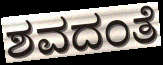
ಶವದಂತೆ